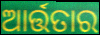
ଆର୍ତ୍ତତାର